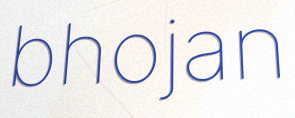
bhojan